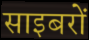
साइबरों